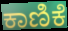
ಕಾಣಿಕೆ